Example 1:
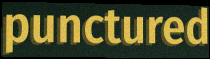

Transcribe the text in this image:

punctured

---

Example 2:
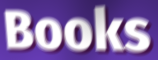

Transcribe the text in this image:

Books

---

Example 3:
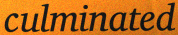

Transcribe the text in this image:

culminated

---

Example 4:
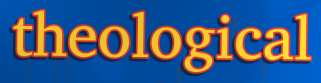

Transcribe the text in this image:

theological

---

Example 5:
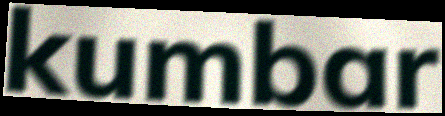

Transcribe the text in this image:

kumbar